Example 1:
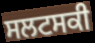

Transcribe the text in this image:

ਸਲਟਸਕੀ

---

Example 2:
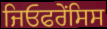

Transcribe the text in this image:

ਜਿਓਫਰੇਂਸਿਸ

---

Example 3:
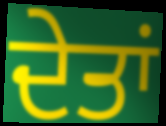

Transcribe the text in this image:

ਦੇਤਾਂ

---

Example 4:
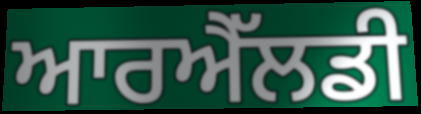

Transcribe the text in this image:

ਆਰਐੱਲਡੀ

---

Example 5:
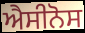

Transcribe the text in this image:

ਐਸੀਨੋਸ